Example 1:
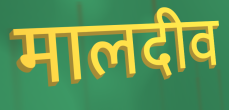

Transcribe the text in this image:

मालदीव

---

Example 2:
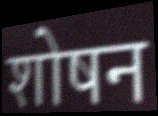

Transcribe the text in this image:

शोषन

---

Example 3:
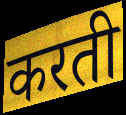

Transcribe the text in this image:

करती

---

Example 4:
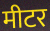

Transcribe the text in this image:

मीटर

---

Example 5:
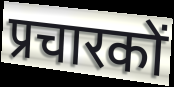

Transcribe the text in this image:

प्रचारकों